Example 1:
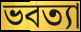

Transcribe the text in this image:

ভবত্যা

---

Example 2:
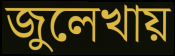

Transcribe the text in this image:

জুলেখায়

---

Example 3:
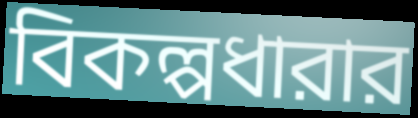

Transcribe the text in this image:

বিকল্পধারার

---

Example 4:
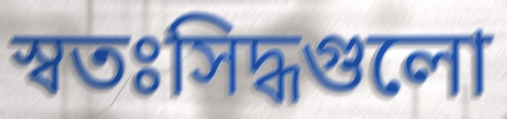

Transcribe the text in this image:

স্বতঃসিদ্ধগুলো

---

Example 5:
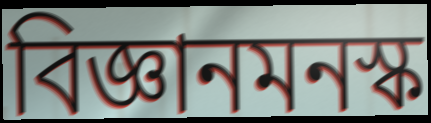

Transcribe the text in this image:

বিজ্ঞানমনস্ক